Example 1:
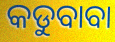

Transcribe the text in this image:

କଡୁବାବା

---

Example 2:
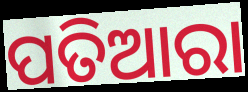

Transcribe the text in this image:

ପତିଆରା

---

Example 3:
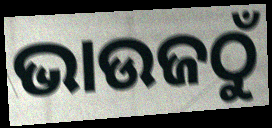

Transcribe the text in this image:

ଭାଉଜଠୁଁ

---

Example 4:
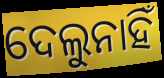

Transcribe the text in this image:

ଦେଲୁନାହିଁ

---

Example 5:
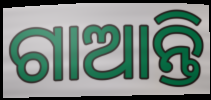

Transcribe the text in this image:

ଗାଆନ୍ତି